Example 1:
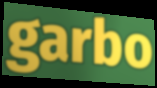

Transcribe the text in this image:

garbo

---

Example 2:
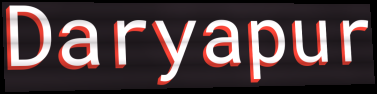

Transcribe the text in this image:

Daryapur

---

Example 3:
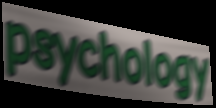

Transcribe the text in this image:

psychology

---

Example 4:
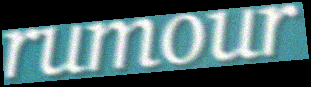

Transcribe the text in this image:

rumour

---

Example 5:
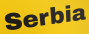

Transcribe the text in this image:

Serbia